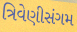
ત્રિવેણીસંગમ